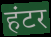
हंटर